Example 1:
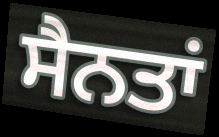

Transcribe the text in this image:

ਸੈਨਤਾਂ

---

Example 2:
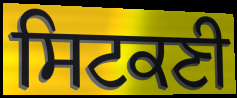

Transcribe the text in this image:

ਸਿਟਕਣੀ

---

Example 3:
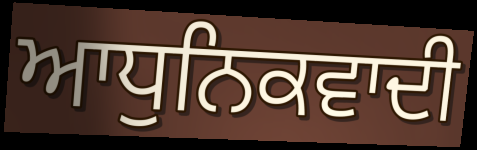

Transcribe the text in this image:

ਆਧੁਨਿਕਵਾਦੀ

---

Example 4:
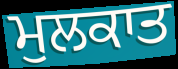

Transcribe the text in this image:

ਮੁਲਕਾਤ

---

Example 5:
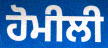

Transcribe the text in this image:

ਹੋਮੀਲੀ